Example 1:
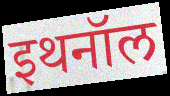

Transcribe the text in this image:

इथनॉल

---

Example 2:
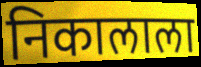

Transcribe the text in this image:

निकालाला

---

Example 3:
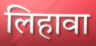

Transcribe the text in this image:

लिहावा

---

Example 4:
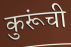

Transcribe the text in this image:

कुरूंची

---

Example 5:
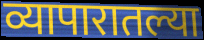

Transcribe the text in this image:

व्यापारातल्या